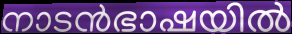
നാടൻഭാഷയിൽ